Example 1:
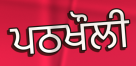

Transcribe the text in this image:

ਪਠਖੌਲੀ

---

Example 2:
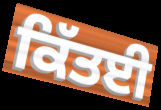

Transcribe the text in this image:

ਕਿੱਤਈ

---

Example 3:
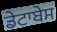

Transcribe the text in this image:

ਡੇਟਾਬੇਸ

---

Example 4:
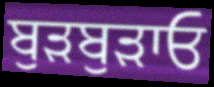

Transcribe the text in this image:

ਬੁੜਬੁੜਾਓ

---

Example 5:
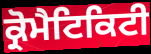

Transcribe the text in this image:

ਕ੍ਰੋਮੈਟਿਕਿਟੀ